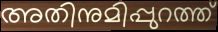
അതിനുമിപ്പുറത്ത്